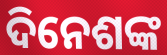
ଦିନେଶଙ୍କ